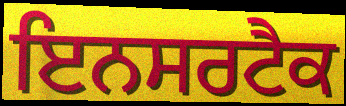
ਇਨਸਰਟੈਕ